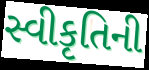
સ્વીકૃતિની